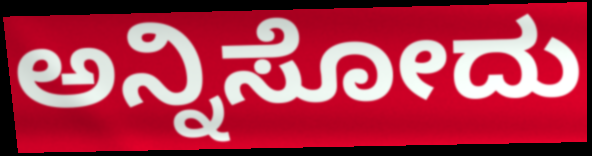
ಅನ್ನಿಸೋದು